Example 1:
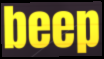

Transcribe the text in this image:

beep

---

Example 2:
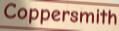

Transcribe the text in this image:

Coppersmith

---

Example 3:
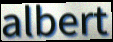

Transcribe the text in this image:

albert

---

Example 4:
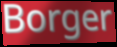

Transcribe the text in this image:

Borger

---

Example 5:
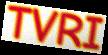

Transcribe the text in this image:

TVRI